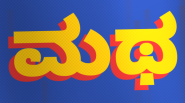
ಮಥ